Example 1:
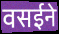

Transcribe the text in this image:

वसईने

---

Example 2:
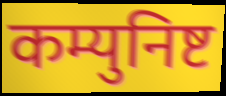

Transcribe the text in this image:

कम्युनिष्ट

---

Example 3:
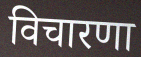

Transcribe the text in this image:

विचारणा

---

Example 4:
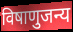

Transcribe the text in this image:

विषाणुजन्य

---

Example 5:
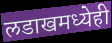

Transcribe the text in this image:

लडाखमध्येही